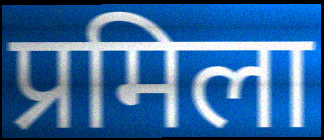
प्रमिला